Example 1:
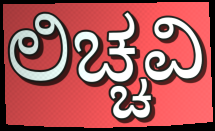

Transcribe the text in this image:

ಲಿಚ್ಚವಿ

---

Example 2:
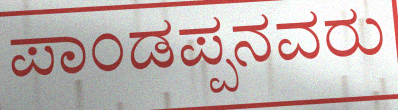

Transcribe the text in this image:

ಪಾಂಡಪ್ಪನವರು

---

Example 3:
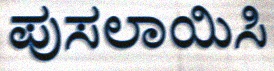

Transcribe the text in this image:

ಪುಸಲಾಯಿಸಿ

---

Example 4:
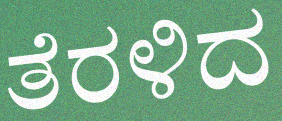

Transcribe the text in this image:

ತೆರಳಿದ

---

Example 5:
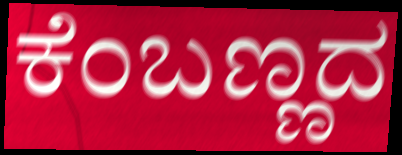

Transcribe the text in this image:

ಕೆಂಬಣ್ಣದ